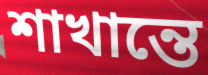
শাখান্তে